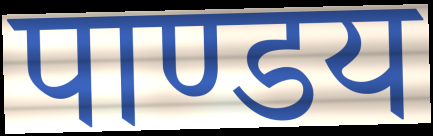
पाण्डय